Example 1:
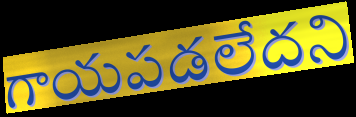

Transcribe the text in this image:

గాయపడలేదని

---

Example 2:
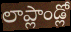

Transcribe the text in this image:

లాప్లాండ్లో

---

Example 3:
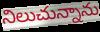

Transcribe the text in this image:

నిలుచున్నాను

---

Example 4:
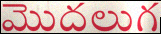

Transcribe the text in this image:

మొదలుగ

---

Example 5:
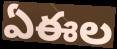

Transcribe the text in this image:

ఏఈల